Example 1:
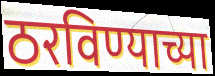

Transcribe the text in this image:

ठरविण्याच्या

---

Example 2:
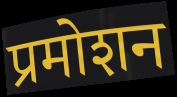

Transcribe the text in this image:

प्रमोशन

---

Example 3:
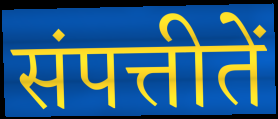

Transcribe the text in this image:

संपत्तीतें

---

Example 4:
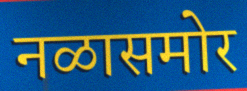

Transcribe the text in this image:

नळासमोर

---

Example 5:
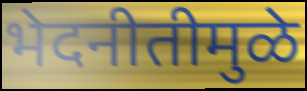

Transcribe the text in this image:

भेदनीतीमुळे